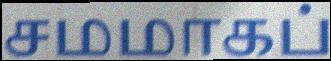
சமமாகப்